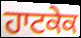
ਹਾਟਕੇਕ